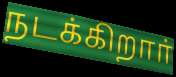
நடக்கிறார்